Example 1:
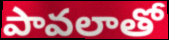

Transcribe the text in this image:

పావలాతో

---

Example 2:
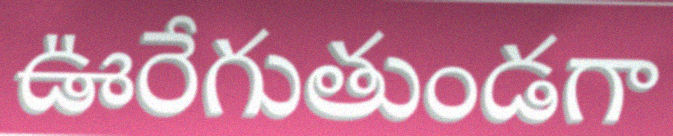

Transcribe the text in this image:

ఊరేగుతుండగా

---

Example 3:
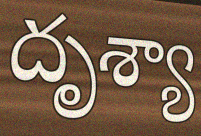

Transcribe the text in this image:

దృశ్యా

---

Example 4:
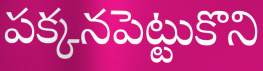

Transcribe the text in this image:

పక్కనపెట్టుకొని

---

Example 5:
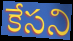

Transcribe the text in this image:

కేసని